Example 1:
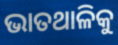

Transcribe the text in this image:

ଭାତଥାଳିକୁ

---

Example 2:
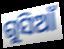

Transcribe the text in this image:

ଗୁସିଆଁ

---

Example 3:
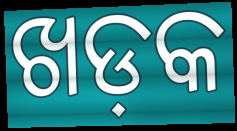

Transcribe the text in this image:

ଖଡ଼କ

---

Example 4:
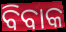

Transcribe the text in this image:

ବିବାକ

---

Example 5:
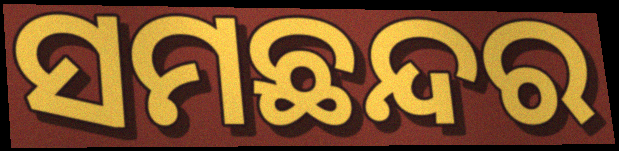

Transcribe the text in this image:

ସମଛନ୍ଦର